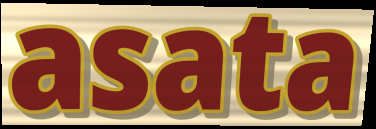
asata